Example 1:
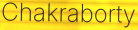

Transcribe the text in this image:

Chakraborty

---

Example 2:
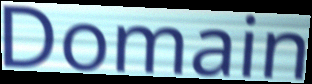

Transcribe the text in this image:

Domain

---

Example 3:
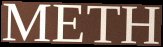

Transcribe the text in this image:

METH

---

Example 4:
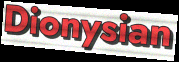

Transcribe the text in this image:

Dionysian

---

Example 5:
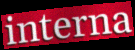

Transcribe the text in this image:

interna